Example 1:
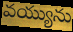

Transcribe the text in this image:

వయ్యును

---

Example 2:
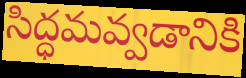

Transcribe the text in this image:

సిద్ధమవ్వడానికి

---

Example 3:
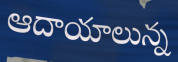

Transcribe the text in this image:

ఆదాయాలున్న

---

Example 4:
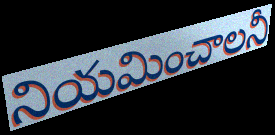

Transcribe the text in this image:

నియమించాలనీ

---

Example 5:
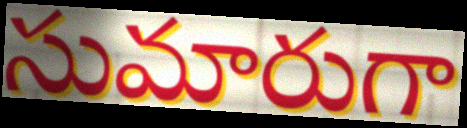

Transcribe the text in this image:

సుమారుగా